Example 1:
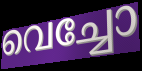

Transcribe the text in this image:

വെച്ചോ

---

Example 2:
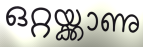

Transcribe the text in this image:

ഒറ്റയ്ക്കാണു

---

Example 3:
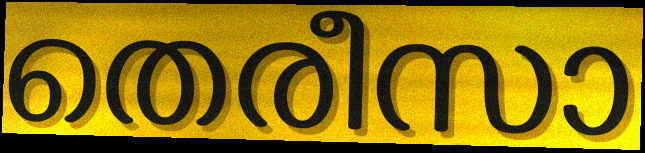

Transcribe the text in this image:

തെരീസാ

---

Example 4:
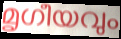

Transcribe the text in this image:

മൃഗീയവും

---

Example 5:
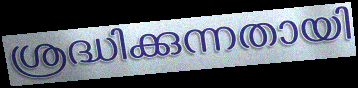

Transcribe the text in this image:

ശ്രദ്ധിക്കുന്നതായി